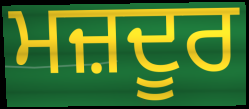
ਮਜ਼ਦੂਰ